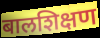
बालशिक्षण